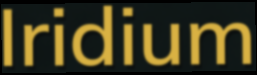
Iridium